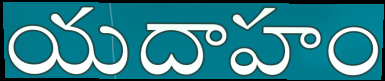
యదాహం